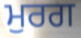
ਮੁਰਗ